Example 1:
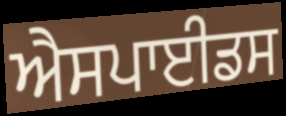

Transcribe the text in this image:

ਐਸਪਾਈਡਸ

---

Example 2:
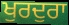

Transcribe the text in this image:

ਖੁਰਦੁਰਾ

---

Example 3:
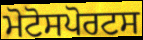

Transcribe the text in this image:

ਮੋਟੋਸਪੋਰਟਸ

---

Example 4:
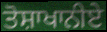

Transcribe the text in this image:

ਤੋਸ਼ਾਖਾਨੀਏ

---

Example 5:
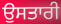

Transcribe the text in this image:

ਉਸਤਾਰੀ